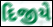
દિજીયે